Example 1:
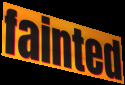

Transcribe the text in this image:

fainted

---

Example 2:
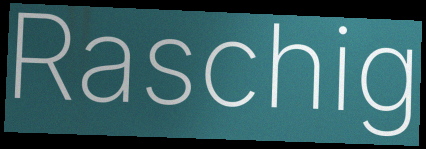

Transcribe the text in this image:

Raschig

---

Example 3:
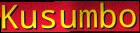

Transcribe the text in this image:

Kusumbo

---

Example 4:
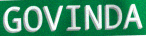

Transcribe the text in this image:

GOVINDA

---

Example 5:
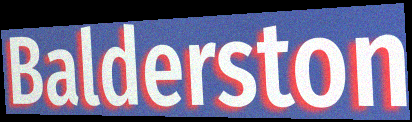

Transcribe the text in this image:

Balderston